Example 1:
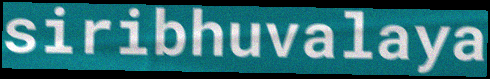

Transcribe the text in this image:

siribhuvalaya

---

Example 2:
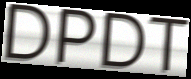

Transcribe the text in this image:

DPDT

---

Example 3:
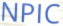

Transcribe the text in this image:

NPIC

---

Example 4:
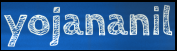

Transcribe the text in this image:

yojananil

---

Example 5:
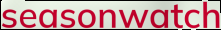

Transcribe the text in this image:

seasonwatch